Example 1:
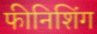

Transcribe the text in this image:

फीनिशिंग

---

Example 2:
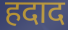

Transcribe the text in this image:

हदाद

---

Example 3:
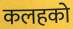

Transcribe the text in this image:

कलहको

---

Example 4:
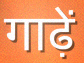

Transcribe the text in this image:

गाढ़ें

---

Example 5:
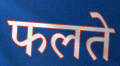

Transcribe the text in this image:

फलते